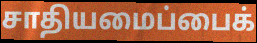
சாதியமைப்பைக்